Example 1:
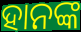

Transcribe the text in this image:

ହାନଙ୍କ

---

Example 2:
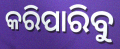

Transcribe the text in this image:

କରିପାରିବୁ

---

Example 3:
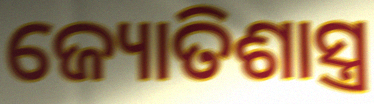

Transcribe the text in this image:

ଜ୍ୟୋତିଶାସ୍ତ୍ର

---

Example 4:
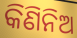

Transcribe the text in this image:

କିଣିନିଅ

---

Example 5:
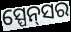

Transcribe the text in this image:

ସ୍ପେନ୍‌ସର